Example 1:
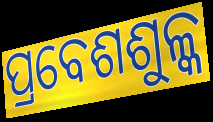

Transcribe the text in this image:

ପ୍ରବେଶଶୁଳ୍କ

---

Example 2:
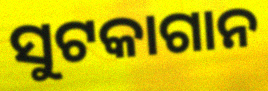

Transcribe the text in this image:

ସୁଟକାଗାନ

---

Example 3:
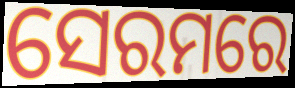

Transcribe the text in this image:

ସେରମରେ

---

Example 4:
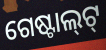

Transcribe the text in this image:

ଗେଷ୍ଟାଲ୍‌ଟ୍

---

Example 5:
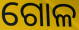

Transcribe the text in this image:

ଗୋଳ